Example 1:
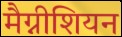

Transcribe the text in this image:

मैग्नीशियन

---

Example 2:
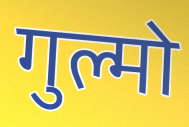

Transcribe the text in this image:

गुल्मो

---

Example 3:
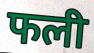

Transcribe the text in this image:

फली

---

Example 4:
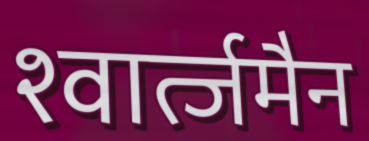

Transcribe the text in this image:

श्वार्त्जमैन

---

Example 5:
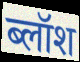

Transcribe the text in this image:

ब्लॉश